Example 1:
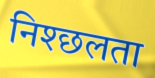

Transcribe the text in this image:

निश्छलता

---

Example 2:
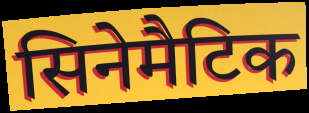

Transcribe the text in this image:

सिनेमैटिक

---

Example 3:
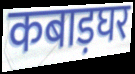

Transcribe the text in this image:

कबाड़घर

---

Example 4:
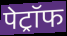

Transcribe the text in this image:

पेट्रॉफ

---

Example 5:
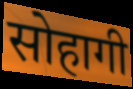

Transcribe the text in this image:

सोहागी